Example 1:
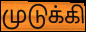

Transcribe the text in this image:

முடுக்கி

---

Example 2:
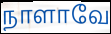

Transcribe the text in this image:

நாளாவே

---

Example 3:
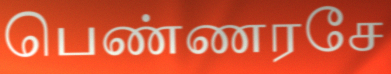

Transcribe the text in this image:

பெண்ணரசே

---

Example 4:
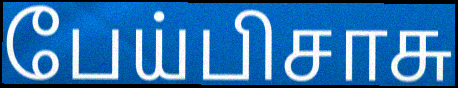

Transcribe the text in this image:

பேய்பிசாசு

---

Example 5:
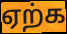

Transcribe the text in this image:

ஏற்க